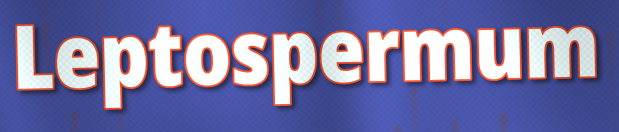
Leptospermum